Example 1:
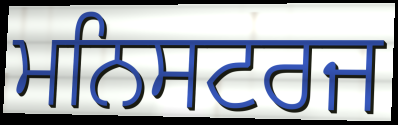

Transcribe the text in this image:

ਮਨਿਸਟਰਜ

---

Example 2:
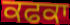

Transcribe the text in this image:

ਕਫਕਾ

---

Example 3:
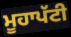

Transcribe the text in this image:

ਮੂਹਾਪੱਟੀ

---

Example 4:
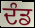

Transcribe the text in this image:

ਦੰਡ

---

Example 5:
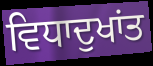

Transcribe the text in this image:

ਵਿਧਾਦੁਖਾਂਤ